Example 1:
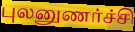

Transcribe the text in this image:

புலனுணர்ச்சி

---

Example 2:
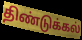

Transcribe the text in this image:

திண்டுக்கல்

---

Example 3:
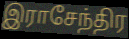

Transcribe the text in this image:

இராசேந்திர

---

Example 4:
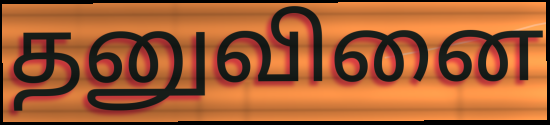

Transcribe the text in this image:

தனுவினை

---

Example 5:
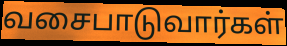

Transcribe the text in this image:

வசைபாடுவார்கள்